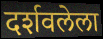
दर्शवलेला